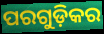
ପରଗୁଡ଼ିକର